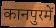
कानपुरमें